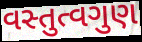
વસ્તુત્વગુણ